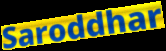
Saroddhar